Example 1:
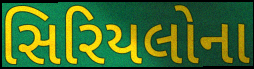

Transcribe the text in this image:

સિરિયલોના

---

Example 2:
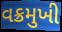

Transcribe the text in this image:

વક્રમુખી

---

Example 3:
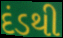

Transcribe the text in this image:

દંડથી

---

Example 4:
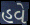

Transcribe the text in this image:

હવે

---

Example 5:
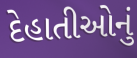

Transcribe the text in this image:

દેહાતીઓનું